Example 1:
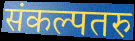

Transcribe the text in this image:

संकल्पतरु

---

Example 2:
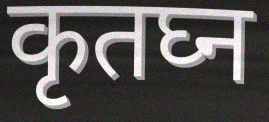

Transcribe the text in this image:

कृतघ्न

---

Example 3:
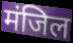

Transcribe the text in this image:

मंजिल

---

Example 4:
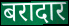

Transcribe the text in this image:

बरादार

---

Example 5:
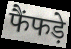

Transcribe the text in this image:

फैंफड़े